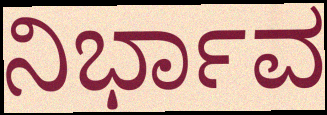
ನಿರ್ಭಾವ